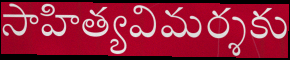
సాహిత్యవిమర్శకు